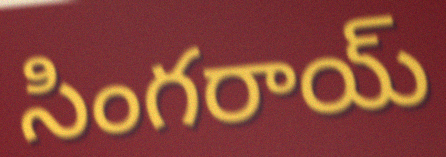
సింగరాయ్